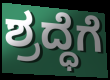
ಶ್ರದ್ಧೆಗೆ